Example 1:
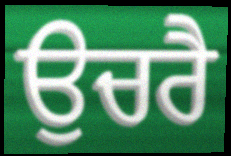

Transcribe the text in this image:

ਉਚਰੈ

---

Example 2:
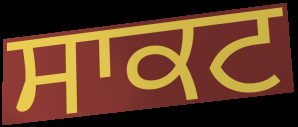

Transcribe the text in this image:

ਸਾਕਟ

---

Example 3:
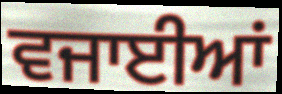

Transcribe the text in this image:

ਵਜਾਈਆਂ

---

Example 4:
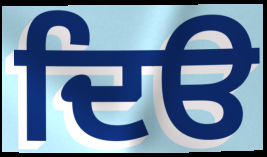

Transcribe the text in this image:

ਦਿੳ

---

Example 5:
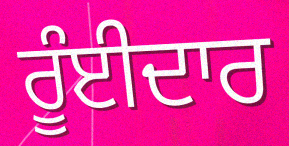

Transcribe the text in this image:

ਰੂੰਈਦਾਰ